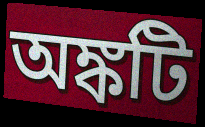
অঙ্কটি